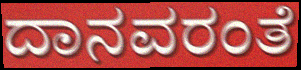
ದಾನವರಂತೆ